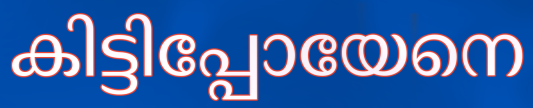
കിട്ടിപ്പോയേനെ